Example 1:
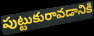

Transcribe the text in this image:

పుట్టుకురావడానికి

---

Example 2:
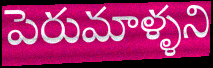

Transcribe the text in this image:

పెరుమాళ్ళని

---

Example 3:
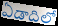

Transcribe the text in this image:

ఏడాదిలో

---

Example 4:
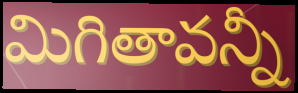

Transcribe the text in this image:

మిగితావన్నీ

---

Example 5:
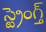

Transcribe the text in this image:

స్ట్రెంగ్త్